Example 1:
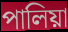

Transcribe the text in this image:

পালিয়া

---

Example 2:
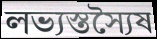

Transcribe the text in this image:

লভ্যস্তস্যৈষ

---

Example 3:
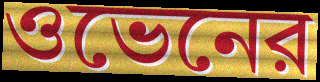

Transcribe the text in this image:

ওভেনের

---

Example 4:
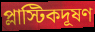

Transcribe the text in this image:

প্লাস্টিকদূষণ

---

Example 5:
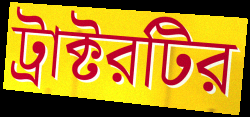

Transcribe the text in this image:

ট্রাক্টরটির